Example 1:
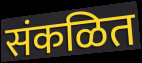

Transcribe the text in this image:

संकळित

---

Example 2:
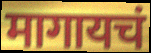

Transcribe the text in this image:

मागायचं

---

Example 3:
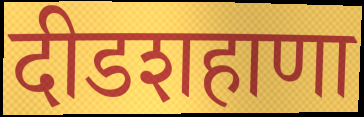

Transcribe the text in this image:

दीडशहाणा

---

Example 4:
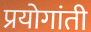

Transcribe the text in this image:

प्रयोगांती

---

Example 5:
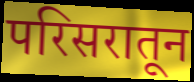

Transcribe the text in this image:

परिसरातून